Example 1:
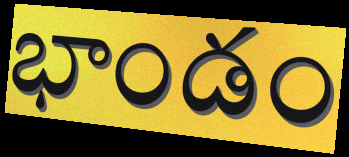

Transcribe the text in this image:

భాండం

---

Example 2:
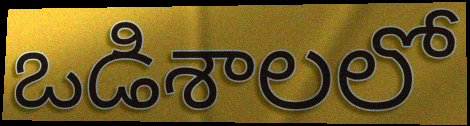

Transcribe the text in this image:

ఒడిశాలలో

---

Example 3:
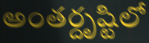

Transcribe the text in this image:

అంతర్దృష్టిలో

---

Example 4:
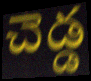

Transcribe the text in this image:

చెడ్డ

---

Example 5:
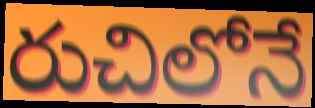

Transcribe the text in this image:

రుచిలోనే